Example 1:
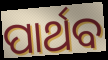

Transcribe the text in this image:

ପାର୍ଥବ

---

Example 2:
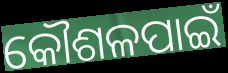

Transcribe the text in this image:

କୌଶଳପାଇଁ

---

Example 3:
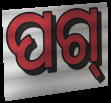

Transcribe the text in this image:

ପଗ୍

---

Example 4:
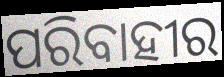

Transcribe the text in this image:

ପରିବାହୀର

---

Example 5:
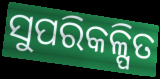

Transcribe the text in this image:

ସୁପରିକଳ୍ପିତ